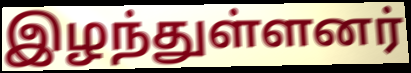
இழந்துள்ளனர்